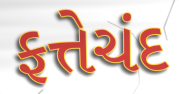
ફત્તેચંદ